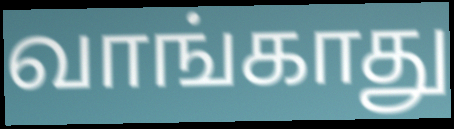
வாங்காது